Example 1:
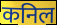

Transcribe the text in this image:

कनिल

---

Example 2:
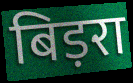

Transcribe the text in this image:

बिड़रा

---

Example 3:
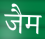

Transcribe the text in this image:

जैम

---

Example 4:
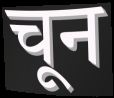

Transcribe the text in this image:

चून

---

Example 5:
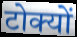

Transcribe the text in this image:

टोक्यों